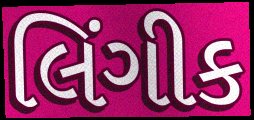
લિંગીક